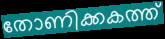
തോണിക്കകത്ത്